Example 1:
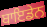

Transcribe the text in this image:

ਬਾਇਡੇਨ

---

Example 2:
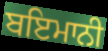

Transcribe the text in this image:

ਬਇਮਾਨੀ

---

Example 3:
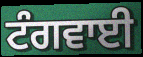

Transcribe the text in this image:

ਟੰਗਵਾਈ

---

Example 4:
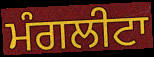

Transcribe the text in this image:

ਮੰਗਲੀਟਾ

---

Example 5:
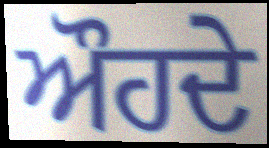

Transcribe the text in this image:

ਔਹਦੇ